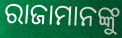
ରାଜାମାନଙ୍କୁ